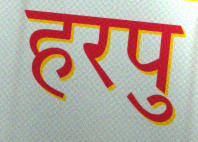
हरपु